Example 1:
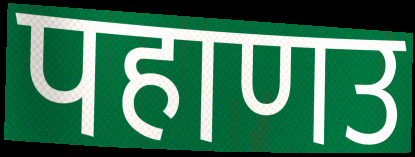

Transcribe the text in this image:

पहाणउ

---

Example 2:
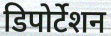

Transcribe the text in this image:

डिपोर्टेशन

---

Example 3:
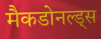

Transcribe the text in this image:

मैकडोनल्ड्स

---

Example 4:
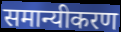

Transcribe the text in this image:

समान्यीकरण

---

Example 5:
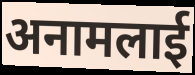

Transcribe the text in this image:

अनामलाई